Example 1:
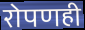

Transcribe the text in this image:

रोपणही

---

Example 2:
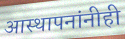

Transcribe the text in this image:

आस्थापनांनीही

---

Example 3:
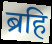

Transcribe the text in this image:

ब्रहि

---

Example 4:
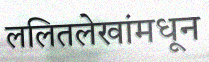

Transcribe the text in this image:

ललितलेखांमधून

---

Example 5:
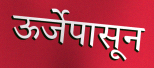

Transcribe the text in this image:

ऊर्जेपासून